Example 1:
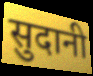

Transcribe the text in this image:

सुदानी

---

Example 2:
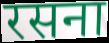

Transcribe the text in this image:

रसना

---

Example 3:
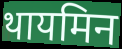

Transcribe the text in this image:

थायमिन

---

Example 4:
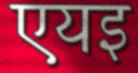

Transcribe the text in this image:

एयइ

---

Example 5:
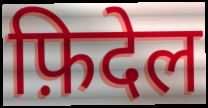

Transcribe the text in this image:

फ़िदेल